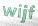
wijf